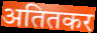
अतितकर